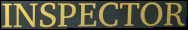
INSPECTOR